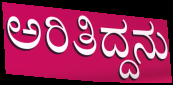
ಅರಿತಿದ್ದನು